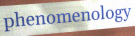
phenomenology